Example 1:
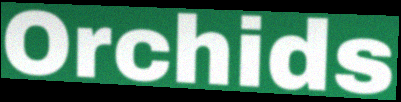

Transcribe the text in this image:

Orchids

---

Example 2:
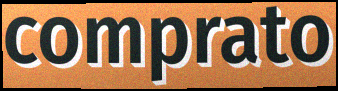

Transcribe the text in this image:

comprato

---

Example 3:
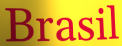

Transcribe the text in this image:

Brasil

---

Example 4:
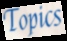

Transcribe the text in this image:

Topics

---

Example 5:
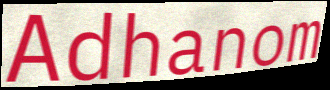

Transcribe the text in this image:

Adhanom